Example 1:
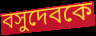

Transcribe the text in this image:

বসুদেবকে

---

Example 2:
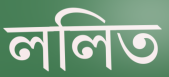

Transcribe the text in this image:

ললিত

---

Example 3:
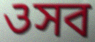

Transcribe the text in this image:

ওসব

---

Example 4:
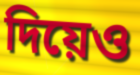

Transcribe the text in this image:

দিয়েও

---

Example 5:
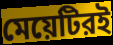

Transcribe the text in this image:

মেয়েটিরই